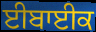
ਈਬਾਈਕ